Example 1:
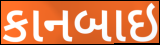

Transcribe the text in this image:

કાનબાઇ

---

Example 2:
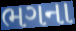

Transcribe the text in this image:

ભગના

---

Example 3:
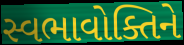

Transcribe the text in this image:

સ્વભાવોક્તિને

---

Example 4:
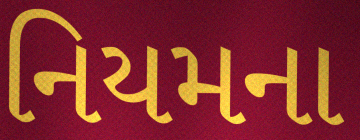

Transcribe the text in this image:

નિયમના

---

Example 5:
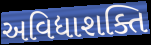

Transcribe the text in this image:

અવિદ્યાશક્તિ